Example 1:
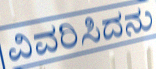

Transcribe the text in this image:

ವಿವರಿಸಿದನು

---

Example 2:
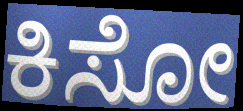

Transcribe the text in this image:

ಕಿಸೋ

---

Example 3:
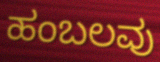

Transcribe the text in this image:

ಹಂಬಲವು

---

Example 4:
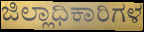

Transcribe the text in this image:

ಜಿಲ್ಲಾಧಿಕಾರಿಗಳ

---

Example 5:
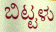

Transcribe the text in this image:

ಬಿಟ್ಟಳು